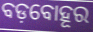
ବଡ଼ବୋହୂର